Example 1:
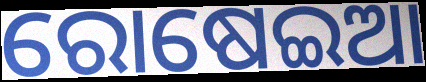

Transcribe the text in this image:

ରୋଷେଇଆ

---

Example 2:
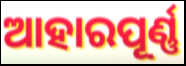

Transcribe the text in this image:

ଆହାରପୂର୍ଣ୍ଣ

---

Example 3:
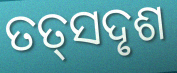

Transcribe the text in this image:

ତତ୍‌ସଦୃଶ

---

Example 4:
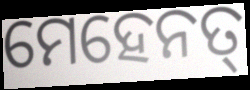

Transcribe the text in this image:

ମେହେନତ୍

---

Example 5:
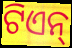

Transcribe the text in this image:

ଟିଏନ୍